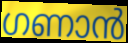
ഗണാൻ